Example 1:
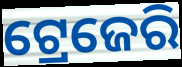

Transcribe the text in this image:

ଟ୍ରେଜେରି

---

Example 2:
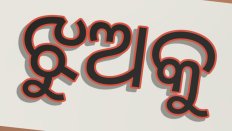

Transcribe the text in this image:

ଝୁଅକୁ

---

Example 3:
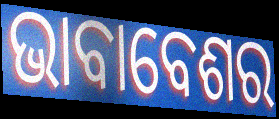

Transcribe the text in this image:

ଭାବାବେଶର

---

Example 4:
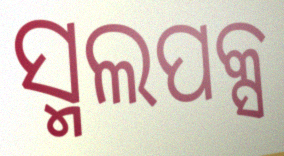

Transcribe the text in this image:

ସ୍ମଲପକ୍ସ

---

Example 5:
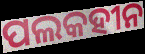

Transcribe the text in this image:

ପଲକହୀନ